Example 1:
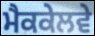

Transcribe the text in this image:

ਮੈਕਕੇਲਵੇ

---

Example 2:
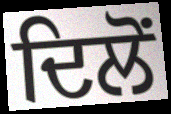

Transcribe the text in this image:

ਦਿਲੋਂ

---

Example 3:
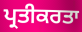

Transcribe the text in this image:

ਪ੍ਰਤੀਕਰਤਾ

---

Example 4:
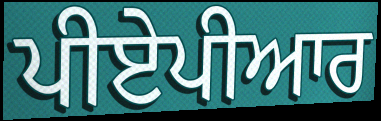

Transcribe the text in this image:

ਪੀਏਪੀਆਰ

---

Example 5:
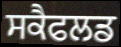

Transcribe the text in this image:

ਸਕੈਫਲਡ